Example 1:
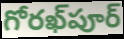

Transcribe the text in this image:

గోరఖ్‌పూర్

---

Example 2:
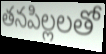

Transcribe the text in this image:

తనపిల్లలతో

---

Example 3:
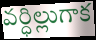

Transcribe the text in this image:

వర్ధిల్లుగాక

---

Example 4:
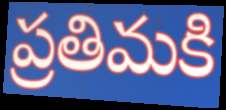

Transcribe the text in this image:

ప్రతిమకి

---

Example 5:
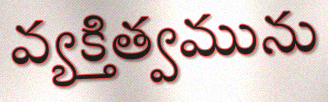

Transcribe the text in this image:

వ్యక్తిత్వమును